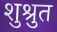
शुश्रुत